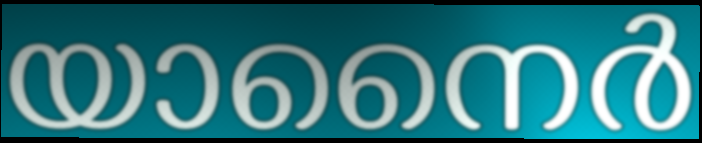
യാനൈർ